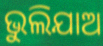
ଭୁଲିଯାଅ